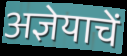
अज्ञेयाचें